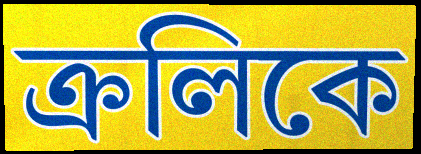
ক্রলিকে